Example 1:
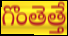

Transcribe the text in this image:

గొంతెత్తే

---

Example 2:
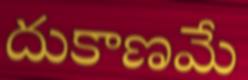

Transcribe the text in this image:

దుకాణమే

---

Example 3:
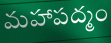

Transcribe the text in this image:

మహాపద్మం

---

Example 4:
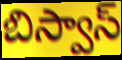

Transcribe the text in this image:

బిస్వాస్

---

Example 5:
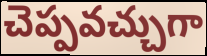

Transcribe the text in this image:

చెప్పవచ్చుగా